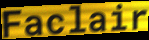
Faclair